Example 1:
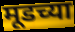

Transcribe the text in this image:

मूडच्या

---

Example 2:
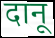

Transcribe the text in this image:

दानू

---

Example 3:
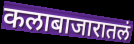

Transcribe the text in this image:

कलाबाजारातलं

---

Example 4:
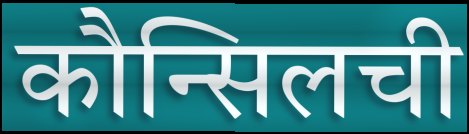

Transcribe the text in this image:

कौन्सिलची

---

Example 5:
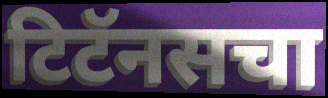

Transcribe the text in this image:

टिटॅनसचा